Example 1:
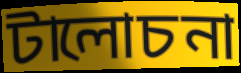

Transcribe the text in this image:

টালোচনা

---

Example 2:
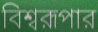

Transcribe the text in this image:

বিশ্বরূপার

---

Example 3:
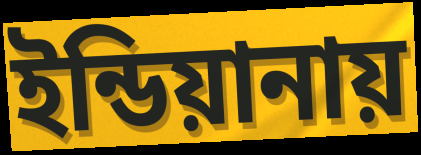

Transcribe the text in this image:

ইন্ডিয়ানায়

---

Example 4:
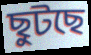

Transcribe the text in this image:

ছুটছে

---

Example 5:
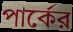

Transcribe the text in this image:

পার্কের